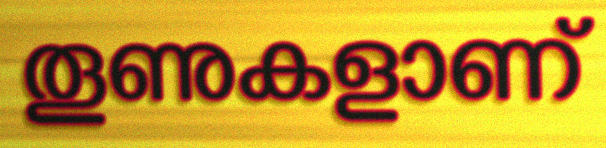
തൂണുകളാണ്